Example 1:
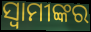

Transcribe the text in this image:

ସ୍ୱାମୀଙ୍କର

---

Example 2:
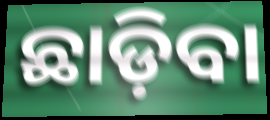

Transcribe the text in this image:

ଛାଡ଼ିବା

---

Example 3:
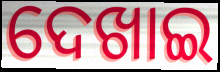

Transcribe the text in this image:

ଦେଖାଇ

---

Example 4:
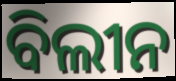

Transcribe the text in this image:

ବିଲୀନ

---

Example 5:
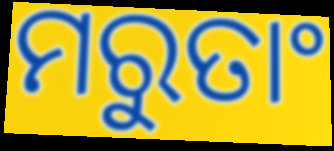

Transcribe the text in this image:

ମରୁତାଂ